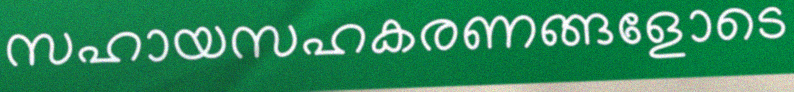
സഹായസഹകരണങ്ങളോടെ